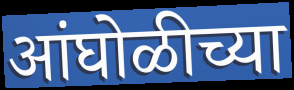
आंघोळीच्या